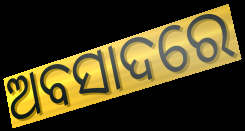
ଅବସାଦରେ